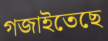
গজাইতেছে